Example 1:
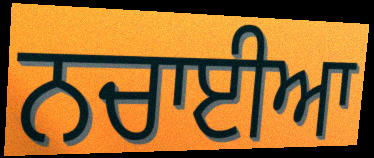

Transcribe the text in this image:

ਨਚਾਈਆ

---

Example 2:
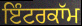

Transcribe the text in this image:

ਇੰਟਰਕਾੱਮ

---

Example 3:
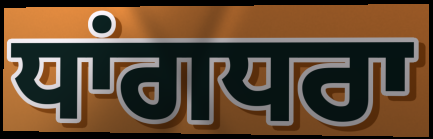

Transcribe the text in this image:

ਧਾਂਗਧਰਾ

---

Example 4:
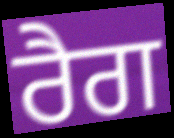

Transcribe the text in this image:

ਰੈਗ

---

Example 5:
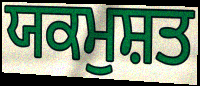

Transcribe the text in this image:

ਯਕਮੁਸ਼ਤ